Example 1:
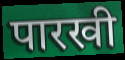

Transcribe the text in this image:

पारखी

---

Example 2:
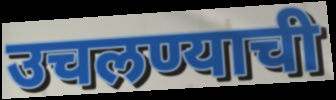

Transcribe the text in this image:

उचलण्याची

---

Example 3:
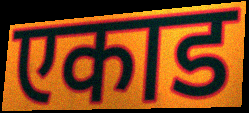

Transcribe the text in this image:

एकाड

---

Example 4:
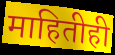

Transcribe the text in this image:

माहितीही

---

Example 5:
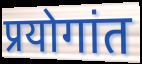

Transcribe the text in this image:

प्रयोगांत